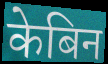
केबिन